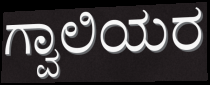
ಗ್ವಾಲಿಯರ